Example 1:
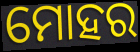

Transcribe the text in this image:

ମୋହର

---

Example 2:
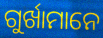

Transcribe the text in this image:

ଗୁର୍ଖାମାନେ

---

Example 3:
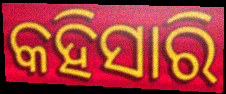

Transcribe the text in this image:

କହିସାରି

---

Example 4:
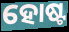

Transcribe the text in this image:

ହୋଷ୍ଟ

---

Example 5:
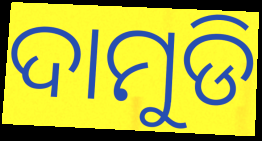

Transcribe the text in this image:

ଦାମୁଡି